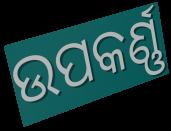
ଉପକର୍ଣ୍ଣ